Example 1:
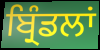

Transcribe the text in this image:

ਬ੍ਰਿੰਡਲਾਂ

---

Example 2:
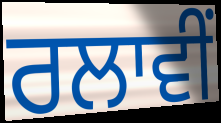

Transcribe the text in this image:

ਰਲਾਵੀਂ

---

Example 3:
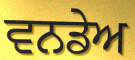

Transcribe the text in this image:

ਵਨਡੇਅ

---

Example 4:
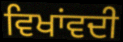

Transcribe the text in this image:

ਵਿਖਾਂਵਦੀ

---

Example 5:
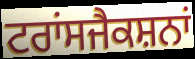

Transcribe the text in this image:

ਟਰਾਂਸਜੈਕਸ਼ਨਾਂ